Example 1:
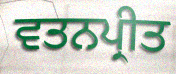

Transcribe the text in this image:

ਵਤਨਪ੍ਰੀਤ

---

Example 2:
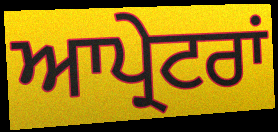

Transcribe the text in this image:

ਆਪ੍ਰੇਟਰਾਂ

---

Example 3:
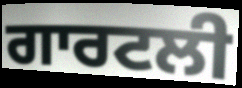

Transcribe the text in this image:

ਗਾਰਟਲੀ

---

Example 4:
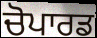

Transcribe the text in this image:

ਚੋਪਾਰਡ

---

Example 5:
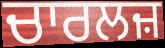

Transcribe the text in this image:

ਚਾਰਲਜ਼